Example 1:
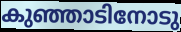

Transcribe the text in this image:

കുഞ്ഞാടിനോടു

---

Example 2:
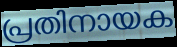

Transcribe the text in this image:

പ്രതിനായക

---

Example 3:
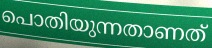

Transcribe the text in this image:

പൊതിയുന്നതാണത്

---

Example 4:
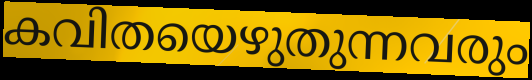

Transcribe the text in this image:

കവിതയെഴുതുന്നവരും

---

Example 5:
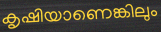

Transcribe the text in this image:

കൃഷിയാണെങ്കിലും